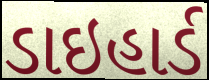
ડાઇહાર્ડ